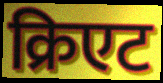
क्रिएट